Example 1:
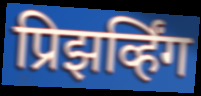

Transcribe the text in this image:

प्रिझर्व्हिंग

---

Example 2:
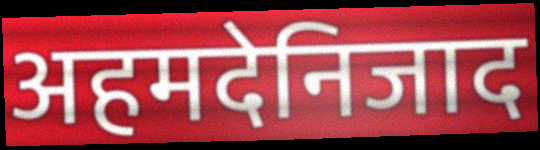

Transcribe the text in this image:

अहमदेनिजाद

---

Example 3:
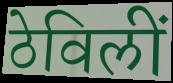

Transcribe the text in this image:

ठेविलीं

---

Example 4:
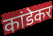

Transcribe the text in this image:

कांडेकर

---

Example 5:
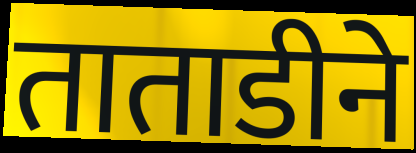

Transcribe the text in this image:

ताताडीने